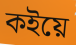
কইয়ে